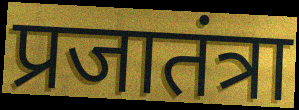
प्रजातंत्रा